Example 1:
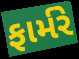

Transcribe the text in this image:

ફાર્મરે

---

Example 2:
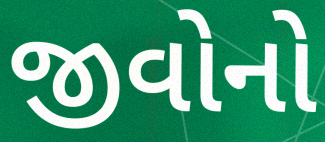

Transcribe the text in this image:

જીવોનો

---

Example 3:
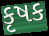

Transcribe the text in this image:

કૃષક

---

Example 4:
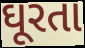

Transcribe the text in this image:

ઘૂરતા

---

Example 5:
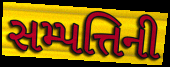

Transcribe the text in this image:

સમ્પત્તિની